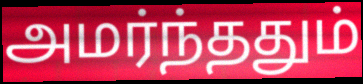
அமர்ந்ததும்